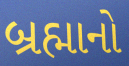
બ્રહ્માનો